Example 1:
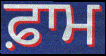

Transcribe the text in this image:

ਫ਼ਾਮ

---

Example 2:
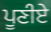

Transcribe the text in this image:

ਪੂਣੀਏ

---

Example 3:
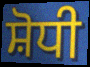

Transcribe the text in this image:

ਸ਼ੋਧੀ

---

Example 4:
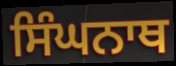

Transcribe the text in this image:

ਸਿੰਘਨਾਥ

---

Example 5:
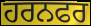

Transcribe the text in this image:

ਹਰਨਫਰ